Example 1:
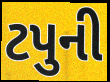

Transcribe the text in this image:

ટપુની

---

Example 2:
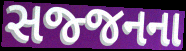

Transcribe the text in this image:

સજ્જનના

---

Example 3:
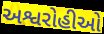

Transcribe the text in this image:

અશ્વરોહીઓ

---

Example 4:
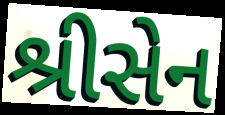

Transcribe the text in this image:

શ્રીસેન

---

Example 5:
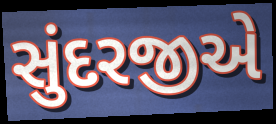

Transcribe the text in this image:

સુંદરજીએ